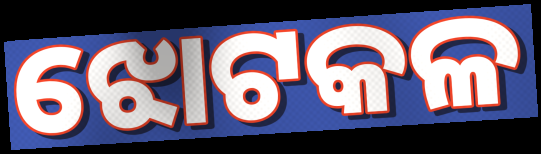
ଝୋଟକଳ